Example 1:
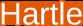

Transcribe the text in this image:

Hartle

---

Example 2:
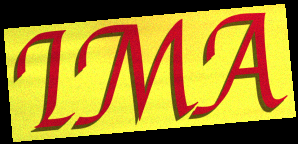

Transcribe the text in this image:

IMA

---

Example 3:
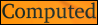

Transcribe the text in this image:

Computed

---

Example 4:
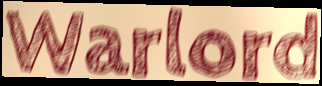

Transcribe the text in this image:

Warlord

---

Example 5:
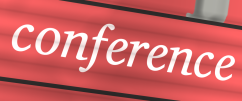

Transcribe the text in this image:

conference